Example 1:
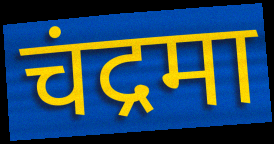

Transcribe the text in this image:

चंद्रमा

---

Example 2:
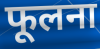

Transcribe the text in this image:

फूलना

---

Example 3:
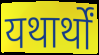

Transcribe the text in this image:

यथार्थों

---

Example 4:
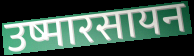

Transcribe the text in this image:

उष्मारसायन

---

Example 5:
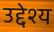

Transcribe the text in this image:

उद्देश्य